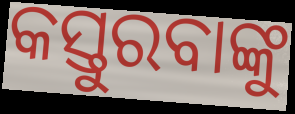
କସ୍ତୁରବାଙ୍କୁ